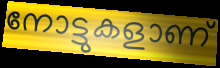
നോട്ടുകളാണ്